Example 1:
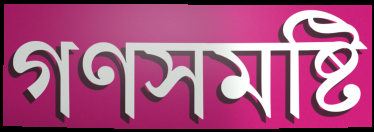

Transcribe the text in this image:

গণসমষ্টি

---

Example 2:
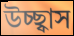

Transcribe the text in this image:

উচ্ছ্বাস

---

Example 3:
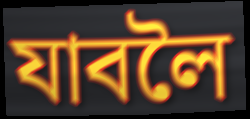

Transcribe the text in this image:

যাবলৈ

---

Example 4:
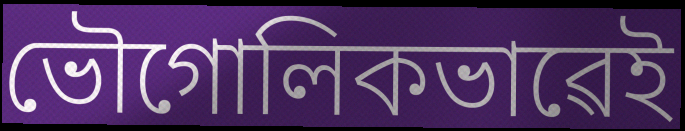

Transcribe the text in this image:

ভৌগোলিকভাৱেই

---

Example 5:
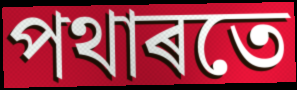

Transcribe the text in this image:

পথাৰতে